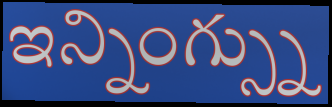
ఇన్నింగ్స్ను